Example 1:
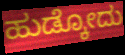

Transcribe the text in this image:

ಹುಡ್ಕೋದು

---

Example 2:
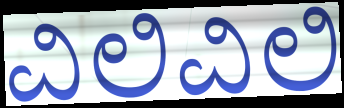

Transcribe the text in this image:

ವಿಲಿವಿಲಿ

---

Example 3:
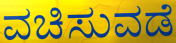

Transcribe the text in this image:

ವಚಿಸುವಡೆ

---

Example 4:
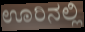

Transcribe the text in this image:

ಊರಿನಲ್ಲಿ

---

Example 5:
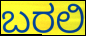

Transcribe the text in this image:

ಬರಲಿ